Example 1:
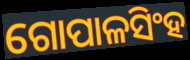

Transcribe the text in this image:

ଗୋପାଳସିଂହ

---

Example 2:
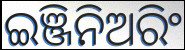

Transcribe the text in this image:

ଇଞ୍ଜିନିଅରିଂ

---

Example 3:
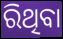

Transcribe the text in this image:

ରିଥିବା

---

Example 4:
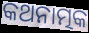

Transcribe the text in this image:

କଥନାତ୍ମକ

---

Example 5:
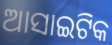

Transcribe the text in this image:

ଆସାଇଟିକ